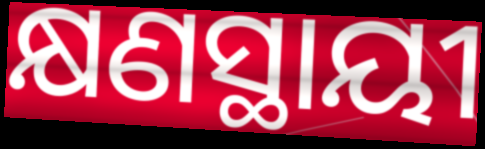
କ୍ଷଣସ୍ଥାୟୀ